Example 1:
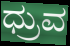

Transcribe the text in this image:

ಧ್ರುವ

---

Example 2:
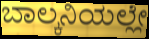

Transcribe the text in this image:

ಬಾಲ್ಕನಿಯಲ್ಲೇ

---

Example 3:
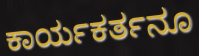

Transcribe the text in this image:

ಕಾರ್ಯಕರ್ತನೂ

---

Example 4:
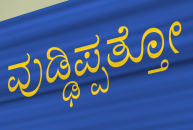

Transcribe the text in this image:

ವುಡ್ಢಿಪ್ಪತ್ತೋ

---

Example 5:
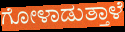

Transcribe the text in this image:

ಗೋಳಾಡುತ್ತಾಳೆ